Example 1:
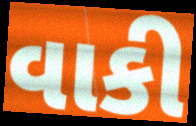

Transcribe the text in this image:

વાકી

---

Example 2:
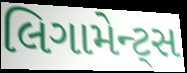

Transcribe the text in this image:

લિગામેન્ટ્સ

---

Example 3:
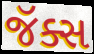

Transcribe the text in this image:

જૅક્સ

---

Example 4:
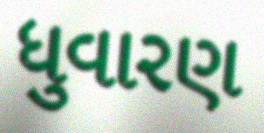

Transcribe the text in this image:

ધુવારણ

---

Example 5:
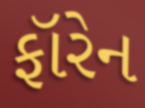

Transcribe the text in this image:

ફૉરેન